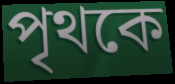
পৃথকে